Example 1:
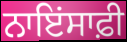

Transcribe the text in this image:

ਨਾਇਂਸਾਫ਼ੀ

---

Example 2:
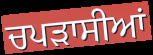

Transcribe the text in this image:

ਚਪੜਾਸੀਆਂ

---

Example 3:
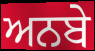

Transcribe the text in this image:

ਅਨਬੇ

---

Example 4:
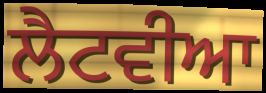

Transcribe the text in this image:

ਲੈਟਵੀਆ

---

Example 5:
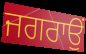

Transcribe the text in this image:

ਜਗਰਾਉਂ